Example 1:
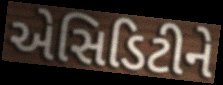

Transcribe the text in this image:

એસિડિટીને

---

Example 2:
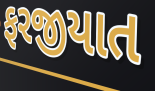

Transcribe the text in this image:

ફરજીયાત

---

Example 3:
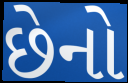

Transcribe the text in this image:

છેનો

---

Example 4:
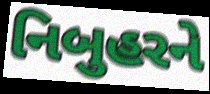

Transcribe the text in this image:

નિબુહરને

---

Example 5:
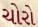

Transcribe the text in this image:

ચોરો